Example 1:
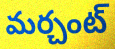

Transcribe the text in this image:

మర్చంట్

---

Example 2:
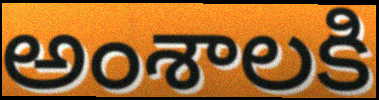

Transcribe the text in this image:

అంశాలకి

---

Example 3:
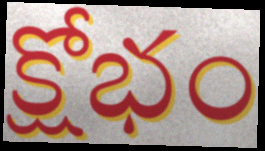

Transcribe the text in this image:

క్షోభం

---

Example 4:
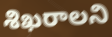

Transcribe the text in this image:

శిఖరాలని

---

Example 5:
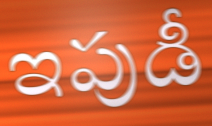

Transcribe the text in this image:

ఇపుడీ